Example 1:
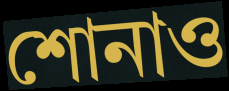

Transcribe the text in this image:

শোনাও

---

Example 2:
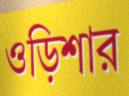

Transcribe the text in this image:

ওড়িশার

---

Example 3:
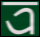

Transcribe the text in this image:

ত্র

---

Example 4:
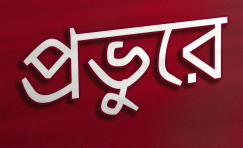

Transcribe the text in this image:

প্রভুরে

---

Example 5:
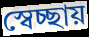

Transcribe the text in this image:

স্বেচ্ছায়